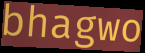
bhagwo